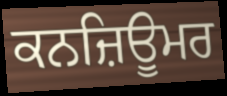
ਕਨਜ਼ਿਊਮਰ